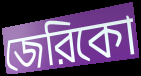
জেরিকো